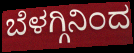
ಬೆಳಗ್ಗಿನಿಂದ